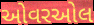
ઓવરઓલ